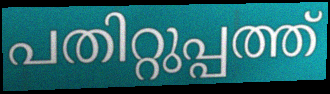
പതിറ്റുപ്പത്ത്